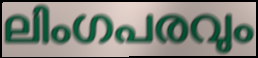
ലിംഗപരവും